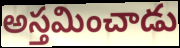
అస్తమించాడు